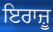
ਇਰਾਜ਼ੂ